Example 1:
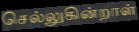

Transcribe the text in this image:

செல்லுகின்றாள்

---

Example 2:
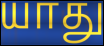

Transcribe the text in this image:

யாது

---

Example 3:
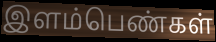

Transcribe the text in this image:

இளம்பெண்கள்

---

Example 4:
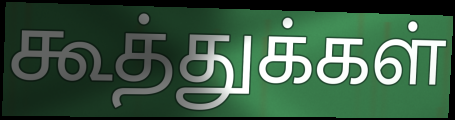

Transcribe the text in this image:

கூத்துக்கள்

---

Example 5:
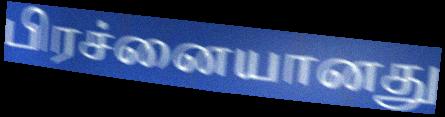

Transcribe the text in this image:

பிரச்னையானது